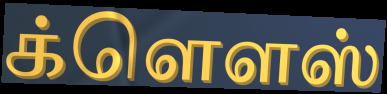
க்ளௌஸ்